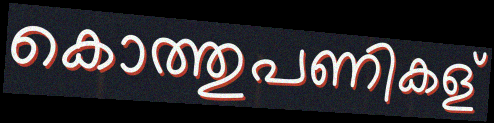
കൊത്തുപണികള്